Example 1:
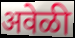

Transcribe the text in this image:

अवेळी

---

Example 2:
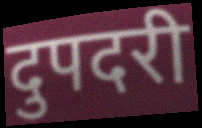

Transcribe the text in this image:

दुपदरी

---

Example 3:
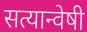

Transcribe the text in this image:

सत्यान्वेषी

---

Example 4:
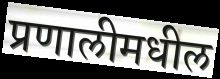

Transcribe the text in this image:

प्रणालीमधील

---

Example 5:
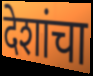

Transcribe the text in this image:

देशांचा